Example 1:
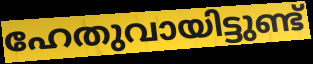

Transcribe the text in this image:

ഹേതുവായിട്ടുണ്ട്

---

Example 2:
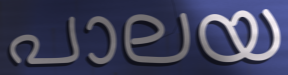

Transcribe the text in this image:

പാലയ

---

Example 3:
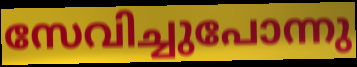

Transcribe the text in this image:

സേവിച്ചുപോന്നു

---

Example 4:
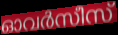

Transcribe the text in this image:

ഓവർസീസ്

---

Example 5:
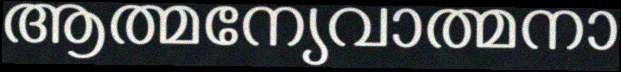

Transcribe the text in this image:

ആത്മന്യേവാത്മനാ